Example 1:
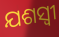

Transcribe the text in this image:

ଯଶସ୍ବୀ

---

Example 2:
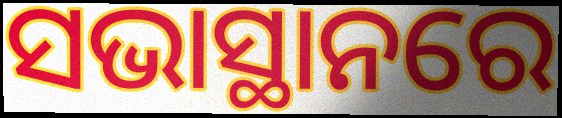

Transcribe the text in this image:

ସଭାସ୍ଥାନରେ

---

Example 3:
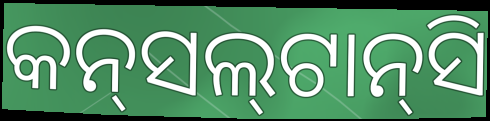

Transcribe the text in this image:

କନ୍‌ସଲ୍‌ଟାନ୍‌ସି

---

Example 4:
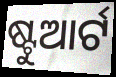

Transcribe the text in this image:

ଷ୍ଟୁଆର୍ଟ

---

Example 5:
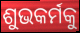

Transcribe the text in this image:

ଶୁଭକର୍ମକୁ